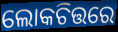
ଲୋକଚିତ୍ତରେ